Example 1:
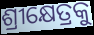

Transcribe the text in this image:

ଶ୍ରୀକ୍ଷେତ୍ରକୁ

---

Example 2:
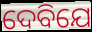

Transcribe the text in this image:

ଦେବିଯେ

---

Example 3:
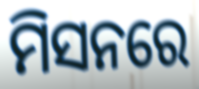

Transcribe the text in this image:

ମିସନରେ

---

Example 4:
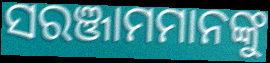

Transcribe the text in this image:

ସରଞ୍ଜାମମାନଙ୍କୁ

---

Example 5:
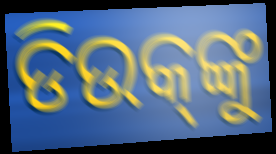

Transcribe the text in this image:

ଡିଉକ୍‌ଙ୍କୁ